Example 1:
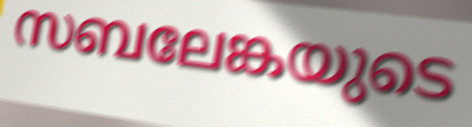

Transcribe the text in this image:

സബലേങ്കയുടെ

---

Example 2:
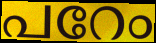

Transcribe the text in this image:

പറേം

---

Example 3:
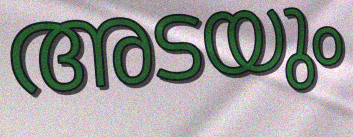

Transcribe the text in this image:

അടയും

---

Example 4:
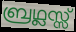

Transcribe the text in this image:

ബ്രഥ്ലസ്സ്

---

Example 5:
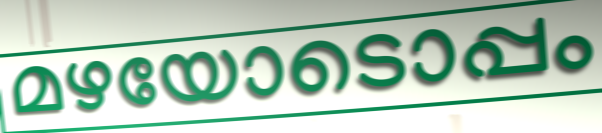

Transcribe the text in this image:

മഴയോടൊപ്പം